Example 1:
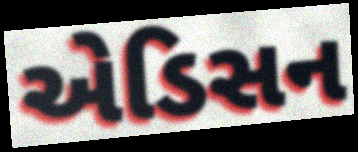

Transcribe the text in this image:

એડિસન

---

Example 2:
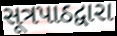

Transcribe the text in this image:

સૂત્રપાઠદ્વારા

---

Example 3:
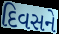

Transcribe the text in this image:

દિવસને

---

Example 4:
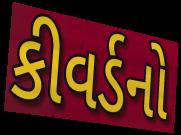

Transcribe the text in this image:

કીવર્ડનો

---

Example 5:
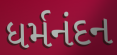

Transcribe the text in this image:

ધર્મનંદન